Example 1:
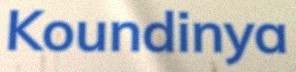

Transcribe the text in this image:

Koundinya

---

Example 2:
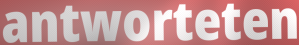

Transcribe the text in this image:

antworteten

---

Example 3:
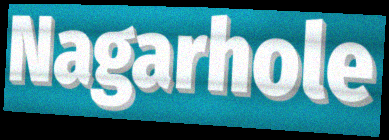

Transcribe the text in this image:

Nagarhole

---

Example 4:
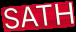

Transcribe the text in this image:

SATH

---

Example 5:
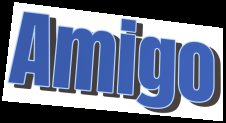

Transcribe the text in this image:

Amigo